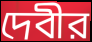
দেবীর